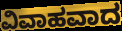
ವಿವಾಹವಾದ